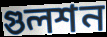
গুলশন